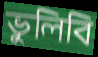
ভুলিবি